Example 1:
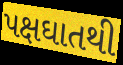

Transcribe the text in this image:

પક્ષઘાતથી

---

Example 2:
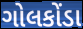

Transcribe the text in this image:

ગોલકોંડા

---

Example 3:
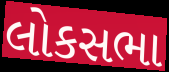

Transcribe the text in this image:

લોકસભા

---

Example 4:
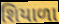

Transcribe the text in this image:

શિયાળા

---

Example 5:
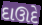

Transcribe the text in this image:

દાઊદે